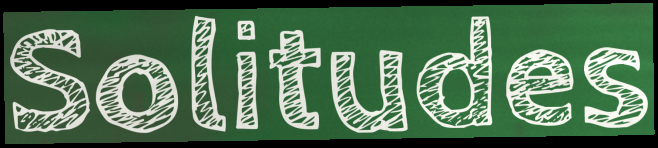
Solitudes